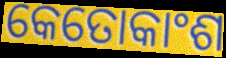
କେତୋକାଂଶ